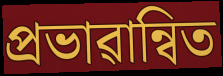
প্ৰভাৱান্বিত